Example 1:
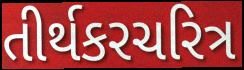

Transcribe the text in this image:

તીર્થકરચરિત્ર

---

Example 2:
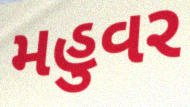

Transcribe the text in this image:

મહુવર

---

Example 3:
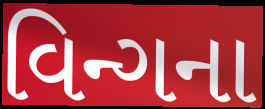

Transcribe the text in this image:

વિન્ગના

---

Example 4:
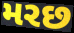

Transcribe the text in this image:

મરછ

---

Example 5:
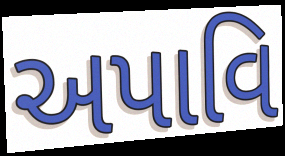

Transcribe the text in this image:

અપાવિ